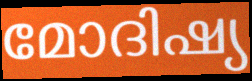
മോദിഷ്യ